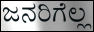
ಜನರಿಗೆಲ್ಲ